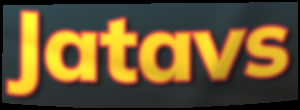
Jatavs